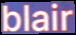
blair